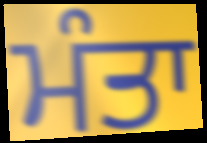
ਮੰਤਾ